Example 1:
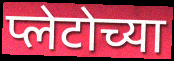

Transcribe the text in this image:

प्लेटोच्या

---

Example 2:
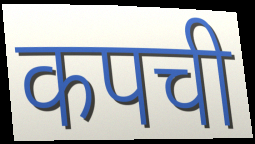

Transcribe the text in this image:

कपची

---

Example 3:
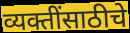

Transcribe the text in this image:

व्यक्तींसाठीचे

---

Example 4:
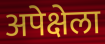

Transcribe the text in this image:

अपेक्षेला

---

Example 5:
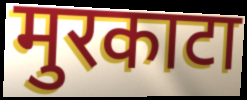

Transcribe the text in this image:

मुरकाटा